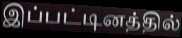
இப்பட்டினத்தில்